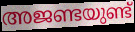
അജണ്ടയുണ്ട്